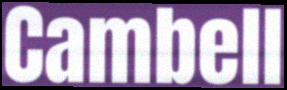
Cambell